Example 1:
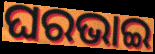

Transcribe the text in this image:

ଘରଭାଇ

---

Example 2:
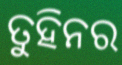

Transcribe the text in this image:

ତୁହିନର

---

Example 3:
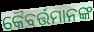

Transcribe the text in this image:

କୈବର୍ତ୍ତମାନଙ୍କ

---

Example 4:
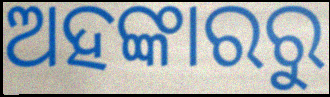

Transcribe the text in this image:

ଅହଙ୍କାରରୁ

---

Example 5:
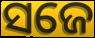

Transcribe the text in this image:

ସଜେ